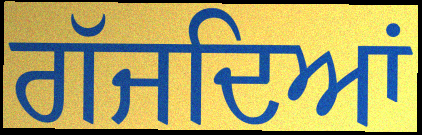
ਗੱਜਦਿਆਂ